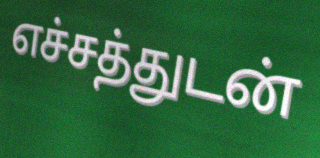
எச்சத்துடன்